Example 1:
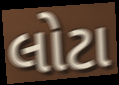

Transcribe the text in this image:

લોટા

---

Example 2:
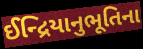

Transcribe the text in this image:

ઈન્દ્રિયાનુભૂતિના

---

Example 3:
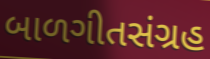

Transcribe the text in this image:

બાળગીતસંગ્રહ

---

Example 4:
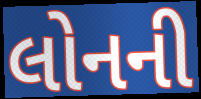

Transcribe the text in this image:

લોનની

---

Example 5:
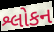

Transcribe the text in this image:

શ્લોકન